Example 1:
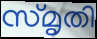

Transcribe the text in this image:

സ്മൃതി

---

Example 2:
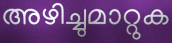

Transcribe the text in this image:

അഴിച്ചുമാറ്റുക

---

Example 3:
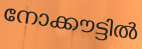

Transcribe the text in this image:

നോക്കൗട്ടിൽ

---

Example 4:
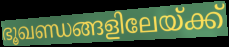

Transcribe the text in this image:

ഭൂഖണ്ഡങ്ങളിലേയ്ക്ക്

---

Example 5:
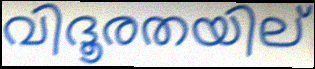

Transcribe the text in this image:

വിദൂരതയില്